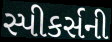
સ્પીકર્સની